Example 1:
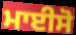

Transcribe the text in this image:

ਮਾਈਸੋ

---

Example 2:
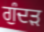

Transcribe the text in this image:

ਗੁੰਦੜ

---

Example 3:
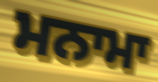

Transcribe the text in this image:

ਮਨਾਮਾ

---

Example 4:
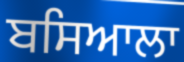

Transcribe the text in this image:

ਬਸਿਆਲਾ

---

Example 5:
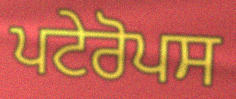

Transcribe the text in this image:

ਪਟੇਰੋਪਸ